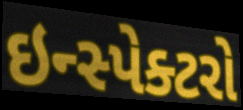
ઇન્સ્પેક્ટરો